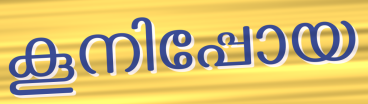
കൂനിപ്പോയ